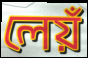
লেয়ঁ